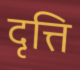
दृत्ति